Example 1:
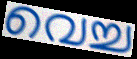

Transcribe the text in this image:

വെച്ച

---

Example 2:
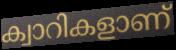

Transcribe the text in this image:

ക്വാറികളാണ്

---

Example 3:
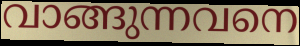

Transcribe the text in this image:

വാങ്ങുന്നവനെ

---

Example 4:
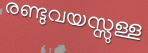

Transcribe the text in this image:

രണ്ടുവയസ്സുള്ള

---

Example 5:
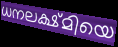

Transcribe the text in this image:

ധനലക്ഷ്മിയെ